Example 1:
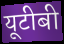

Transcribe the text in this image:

यूटीबी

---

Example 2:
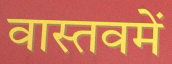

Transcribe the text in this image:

वास्तवमें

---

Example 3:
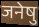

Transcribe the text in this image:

जनेषु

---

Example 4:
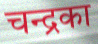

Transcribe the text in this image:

चन्द्रका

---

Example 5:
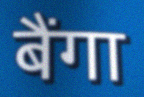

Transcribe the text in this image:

बैंगा